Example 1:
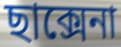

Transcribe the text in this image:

ছাক্সেনা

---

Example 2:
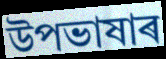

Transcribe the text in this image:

উপভাষাৰ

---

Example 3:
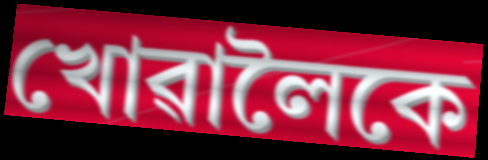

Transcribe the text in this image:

খোৱালৈকে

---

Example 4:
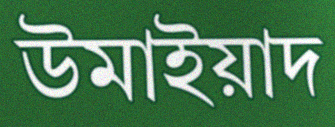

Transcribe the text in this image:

উমাইয়াদ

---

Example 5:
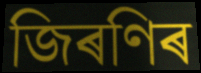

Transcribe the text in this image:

জিৰণিৰ